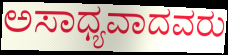
ಅಸಾಧ್ಯವಾದವರು